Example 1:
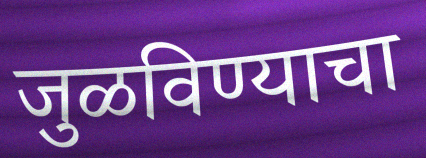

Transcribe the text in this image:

जुळविण्याचा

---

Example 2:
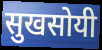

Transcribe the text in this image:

सुखसोयी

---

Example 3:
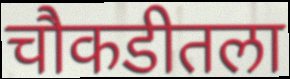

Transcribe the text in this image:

चौकडीतला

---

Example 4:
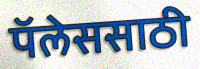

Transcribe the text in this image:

पॅलेससाठी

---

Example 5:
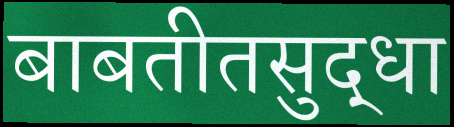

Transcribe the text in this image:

बाबतीतसुद्धा